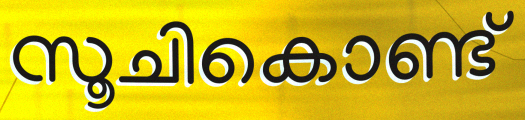
സൂചികൊണ്ട്